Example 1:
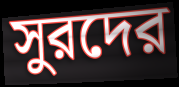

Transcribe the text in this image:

সুরদের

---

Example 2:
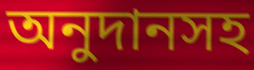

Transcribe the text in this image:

অনুদানসহ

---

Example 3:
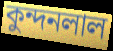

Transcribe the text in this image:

কুন্দনলাল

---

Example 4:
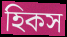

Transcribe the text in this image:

হিকস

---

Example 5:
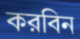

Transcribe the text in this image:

করবিন